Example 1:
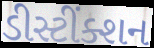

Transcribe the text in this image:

ડીસ્ટીંક્શન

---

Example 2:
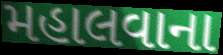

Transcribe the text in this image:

મહાલવાના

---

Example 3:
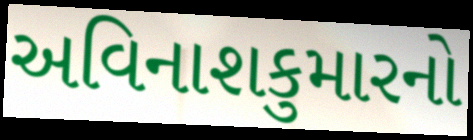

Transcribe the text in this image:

અવિનાશકુમારનો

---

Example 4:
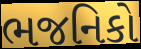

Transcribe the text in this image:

ભજનિકો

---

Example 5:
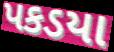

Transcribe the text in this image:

પકડયા